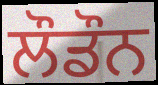
ਲੌਡੌਨ